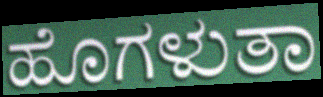
ಹೊಗಳುತಾ